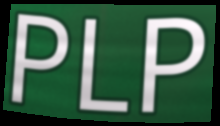
PLP